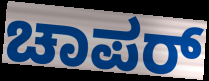
ಚಾಪರ್